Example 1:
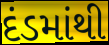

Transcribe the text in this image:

દંડમાંથી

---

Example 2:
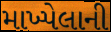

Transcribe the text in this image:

માખ્પેલાની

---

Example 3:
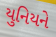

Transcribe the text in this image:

યુનિયને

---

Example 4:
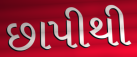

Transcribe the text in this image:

છાપીથી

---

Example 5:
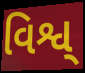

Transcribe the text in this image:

વિશ્વ્